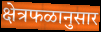
क्षेत्रफळानुसार